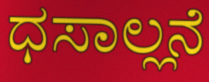
ಧಸಾಲ್ಲನೆ